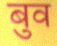
बुव